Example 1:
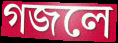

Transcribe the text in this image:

গজলে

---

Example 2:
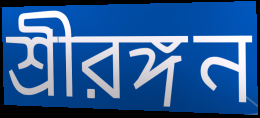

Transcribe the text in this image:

শ্রীরঙ্গন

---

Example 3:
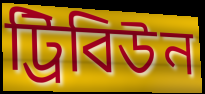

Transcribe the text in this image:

ট্রিবিউন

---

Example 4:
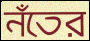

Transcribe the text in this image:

নঁতের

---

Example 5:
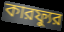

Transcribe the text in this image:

কারফ্যুর